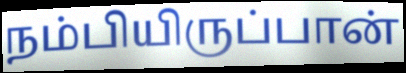
நம்பியிருப்பான்